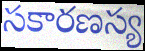
సకారణస్య